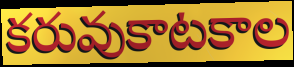
కరువుకాటకాల